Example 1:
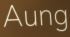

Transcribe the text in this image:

Aung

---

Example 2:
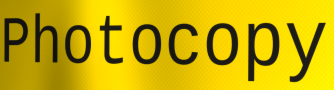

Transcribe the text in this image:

Photocopy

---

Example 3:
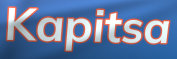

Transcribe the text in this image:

Kapitsa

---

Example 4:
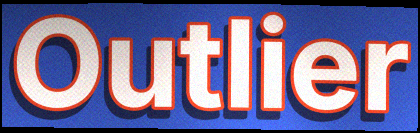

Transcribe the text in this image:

Outlier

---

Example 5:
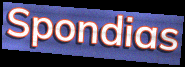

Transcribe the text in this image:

Spondias